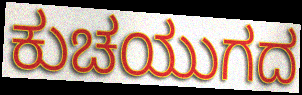
ಕುಚಯುಗದ